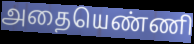
அதையெண்ணி